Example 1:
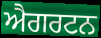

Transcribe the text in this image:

ਐਗਰਟਨ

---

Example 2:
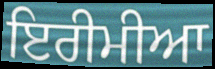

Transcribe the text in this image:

ਇਰੀਮੀਆ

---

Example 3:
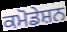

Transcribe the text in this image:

ਕਮੋਡੇਸ਼ਨ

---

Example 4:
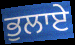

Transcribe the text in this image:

ਭੁਲਾਏ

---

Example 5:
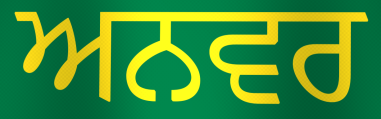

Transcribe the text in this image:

ਅਨਵਰ